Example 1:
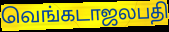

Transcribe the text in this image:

வெங்கடாஜலபதி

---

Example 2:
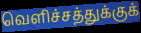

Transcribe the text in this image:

வெளிச்சத்துக்குக்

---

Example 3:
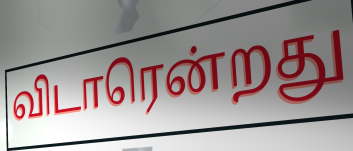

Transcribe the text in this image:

விடாரென்றது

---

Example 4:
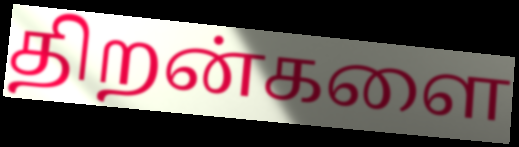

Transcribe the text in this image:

திறன்களை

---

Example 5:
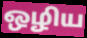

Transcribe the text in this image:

ஒழிய